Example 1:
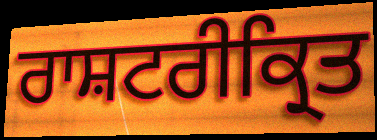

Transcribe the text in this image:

ਰਾਸ਼ਟਰੀਕ੍ਰਿਤ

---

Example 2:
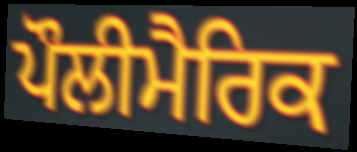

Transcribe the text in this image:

ਪੌਲੀਮੈਰਿਕ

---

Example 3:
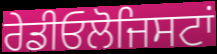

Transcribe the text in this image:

ਰੇਡੀਓਲੋਜਿਸਟਾਂ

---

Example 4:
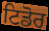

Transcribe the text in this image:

ਟਿਡੋਰ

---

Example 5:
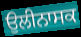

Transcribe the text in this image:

ਉਲੀਨਾਸਕ